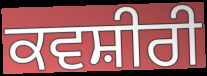
ਕਵਸ਼ੀਰੀ